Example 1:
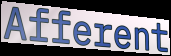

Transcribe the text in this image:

Afferent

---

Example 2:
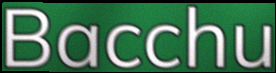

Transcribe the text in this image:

Bacchu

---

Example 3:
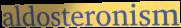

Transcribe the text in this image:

aldosteronism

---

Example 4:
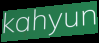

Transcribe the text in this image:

kahyun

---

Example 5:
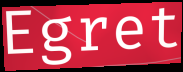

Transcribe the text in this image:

Egret